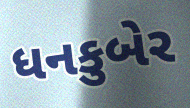
ધનકુબેર